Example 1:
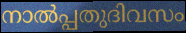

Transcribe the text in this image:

നാൽപ്പതുദിവസം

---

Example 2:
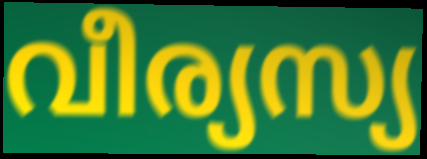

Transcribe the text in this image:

വീര്യസ്യ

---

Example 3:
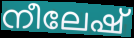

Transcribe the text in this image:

നീലേഷ്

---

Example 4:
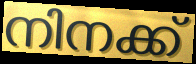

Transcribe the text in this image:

നിനക്ക്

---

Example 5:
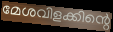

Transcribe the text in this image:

മേശവിളക്കിന്റെ